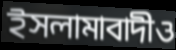
ইসলামাবাদীও